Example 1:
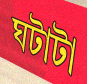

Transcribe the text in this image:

ঘটাটা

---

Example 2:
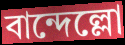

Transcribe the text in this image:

বান্দেল্লো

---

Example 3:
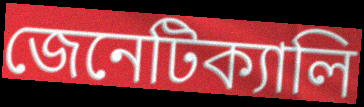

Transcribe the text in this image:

জেনেটিক্যালি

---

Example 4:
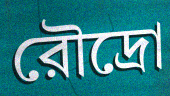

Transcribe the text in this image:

রৌদ্রো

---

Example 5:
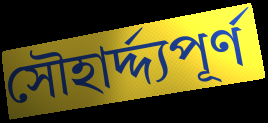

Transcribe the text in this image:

সৌহার্দ্দ্যপূর্ণ